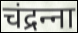
चंद्रन्ना